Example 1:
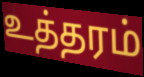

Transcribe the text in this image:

உத்தரம்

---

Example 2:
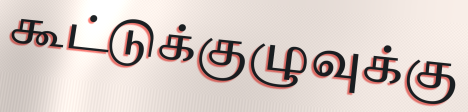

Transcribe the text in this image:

கூட்டுக்குழுவுக்கு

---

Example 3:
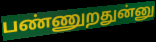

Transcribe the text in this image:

பண்ணுறதுன்னு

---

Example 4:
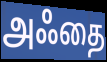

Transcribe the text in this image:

அஃதை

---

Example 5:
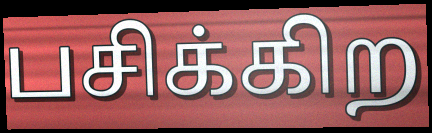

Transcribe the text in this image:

பசிக்கிற